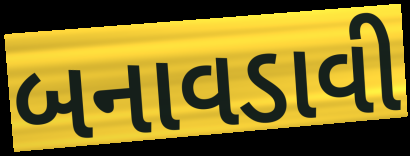
બનાવડાવી